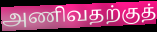
அணிவதற்குத்